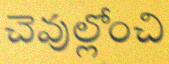
చెవుల్లోంచి